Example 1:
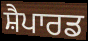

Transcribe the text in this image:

ਸ਼ੈਪਾਰਡ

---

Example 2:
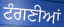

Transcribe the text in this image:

ਟੰਗਣੀਆਂ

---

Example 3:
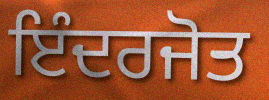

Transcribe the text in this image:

ਇੰਦਰਜੋਤ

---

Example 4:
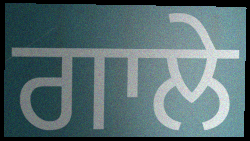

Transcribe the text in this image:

ਗਾਲੇ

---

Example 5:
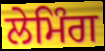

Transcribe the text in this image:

ਲੇਮਿੰਗ